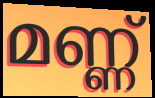
മണ്ണ്